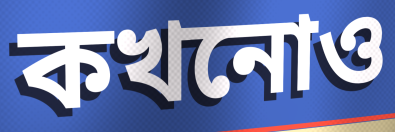
কখনোও